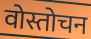
वोस्तोचन